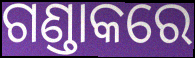
ଗଣ୍ଡାକରେ